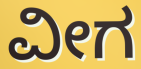
ವೀಗ